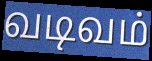
வடிவம்